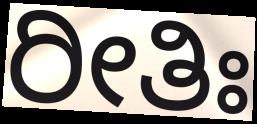
ರೀತಿಃ